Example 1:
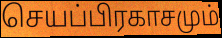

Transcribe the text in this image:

செயப்பிரகாசமும்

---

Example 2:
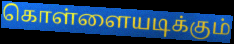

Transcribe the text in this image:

கொள்ளையடிக்கும்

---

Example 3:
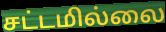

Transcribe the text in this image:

சட்டமில்லை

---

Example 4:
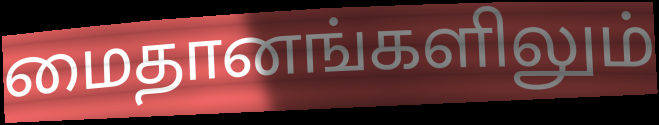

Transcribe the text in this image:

மைதானங்களிலும்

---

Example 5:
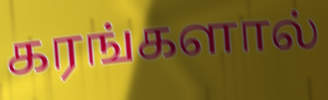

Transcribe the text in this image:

கரங்களால்